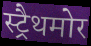
स्ट्रैथमोर